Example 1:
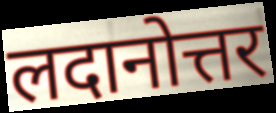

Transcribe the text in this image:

लदानोत्तर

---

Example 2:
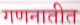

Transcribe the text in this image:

गणनातीत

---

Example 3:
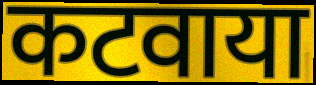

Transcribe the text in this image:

कटवाया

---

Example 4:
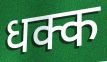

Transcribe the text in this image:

धक्क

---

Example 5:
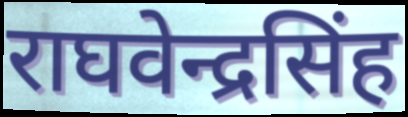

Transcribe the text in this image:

राघवेन्द्रसिंह